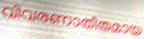
വിവരണാതീതമായ